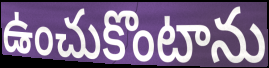
ఉంచుకొంటాను